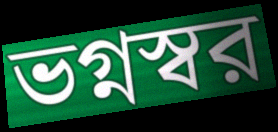
ভগ্নস্বর